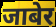
जाबेर